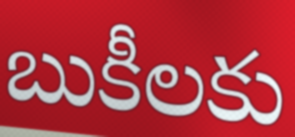
బుకీలకు